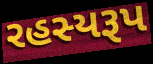
રહસ્યરૂપ